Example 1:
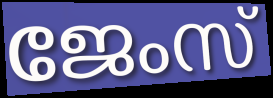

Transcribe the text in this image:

ജേംസ്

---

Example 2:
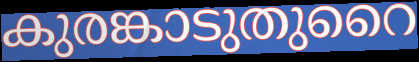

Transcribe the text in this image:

കുരങ്കാടുതുറൈ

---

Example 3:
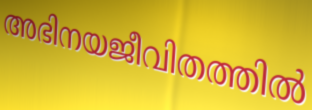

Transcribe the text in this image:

അഭിനയജീവിതത്തിൽ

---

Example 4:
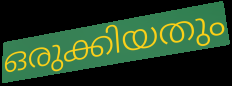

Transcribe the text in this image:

ഒരുക്കിയതും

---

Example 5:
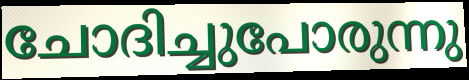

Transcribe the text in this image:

ചോദിച്ചുപോരുന്നു